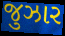
જુઝાર